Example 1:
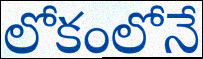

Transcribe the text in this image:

లోకంలోనే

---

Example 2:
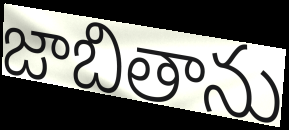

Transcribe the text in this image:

జాబితాను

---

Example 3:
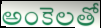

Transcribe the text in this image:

అంకెలతో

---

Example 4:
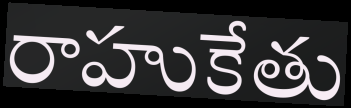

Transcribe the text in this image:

రాహుకేతు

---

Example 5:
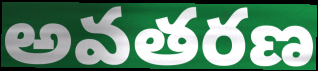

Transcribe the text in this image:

అవతరణ